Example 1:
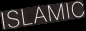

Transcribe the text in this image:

ISLAMIC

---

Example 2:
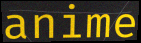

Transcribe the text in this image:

anime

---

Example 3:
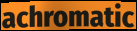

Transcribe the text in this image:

achromatic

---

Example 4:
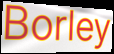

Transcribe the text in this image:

Borley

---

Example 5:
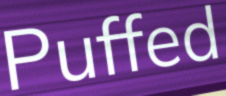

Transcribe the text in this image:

Puffed